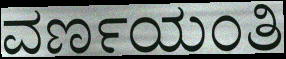
ವರ್ಣಯಂತಿ